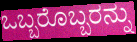
ಒಬ್ಬರೊಬ್ಬರನ್ನು